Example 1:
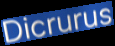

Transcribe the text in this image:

Dicrurus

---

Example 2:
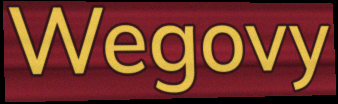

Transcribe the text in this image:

Wegovy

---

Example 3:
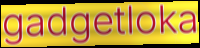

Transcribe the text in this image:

gadgetloka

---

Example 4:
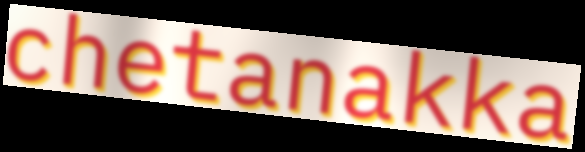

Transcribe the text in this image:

chetanakka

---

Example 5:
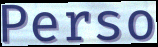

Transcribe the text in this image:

Perso